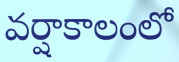
వర్షాకాలంలో